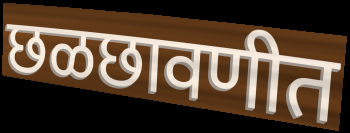
छळछावणीत